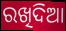
ରଖିଦିଆ